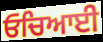
ਓਚਿਆਈ